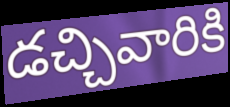
డచ్చివారికి